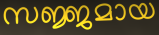
സജ്ജമായ